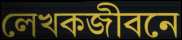
লেখকজীবনে